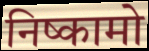
निष्कामो